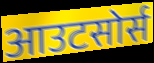
आउटसोर्स